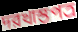
দরখাস্তপত্র